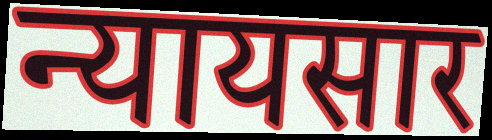
न्यायसार